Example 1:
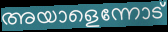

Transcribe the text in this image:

അയാളെന്നോട്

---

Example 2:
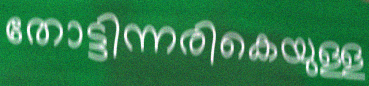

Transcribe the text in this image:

തോട്ടിന്നരികെയുള്ള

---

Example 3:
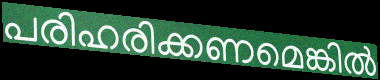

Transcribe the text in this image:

പരിഹരിക്കണമെങ്കിൽ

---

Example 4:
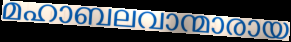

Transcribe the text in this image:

മഹാബലവാന്മാരായ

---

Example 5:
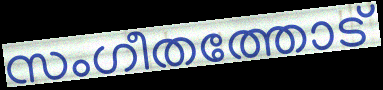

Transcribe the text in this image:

സംഗീതത്തോട്